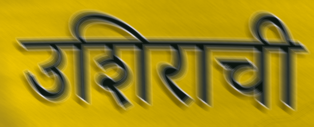
उशिराची